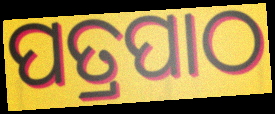
ପତ୍ରପାଠ